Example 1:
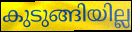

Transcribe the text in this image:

കുടുങ്ങിയില്ല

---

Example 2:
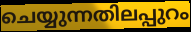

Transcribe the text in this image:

ചെയ്യുന്നതിലപ്പുറം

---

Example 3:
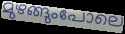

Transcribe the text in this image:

മുഴങ്ങുംപോലെ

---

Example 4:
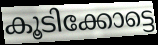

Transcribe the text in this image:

കൂടിക്കോട്ടെ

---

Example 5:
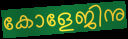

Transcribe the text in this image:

കോളേജിനു